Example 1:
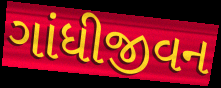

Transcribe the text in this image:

ગાંધીજીવન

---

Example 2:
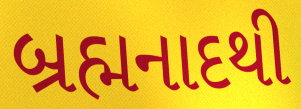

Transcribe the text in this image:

બ્રહ્મનાદથી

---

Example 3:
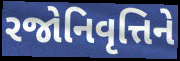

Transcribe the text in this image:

રજોનિવૃત્તિને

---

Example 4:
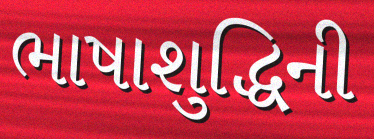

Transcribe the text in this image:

ભાષાશુદ્ધિની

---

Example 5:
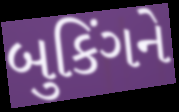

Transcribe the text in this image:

બુકિંગને